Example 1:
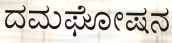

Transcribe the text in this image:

ದಮಘೋಷನ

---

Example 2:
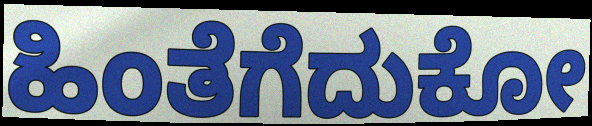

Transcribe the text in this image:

ಹಿಂತೆಗೆದುಕೋ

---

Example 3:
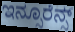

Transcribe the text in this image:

ಇನ್ಸೂರೆನ್ಸ್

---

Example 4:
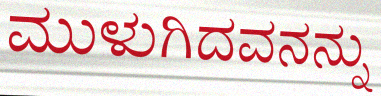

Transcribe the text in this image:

ಮುಳುಗಿದವನನ್ನು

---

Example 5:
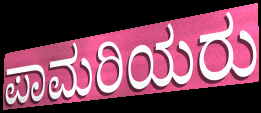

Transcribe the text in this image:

ಪಾಮರಿಯರು